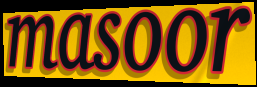
masoor